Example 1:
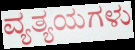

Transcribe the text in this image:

ವ್ಯತ್ಯಯಗಳು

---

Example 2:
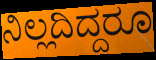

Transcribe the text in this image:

ನಿಲ್ಲದಿದ್ದರೂ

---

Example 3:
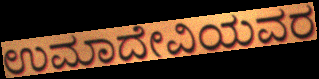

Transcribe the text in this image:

ಉಮಾದೇವಿಯವರ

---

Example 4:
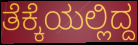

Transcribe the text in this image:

ತೆಕ್ಕೆಯಲ್ಲಿದ್ದ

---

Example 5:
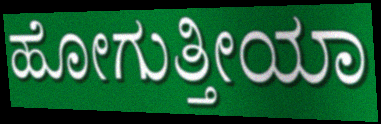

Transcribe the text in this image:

ಹೋಗುತ್ತೀಯಾ